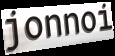
jonnoi